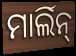
ମାର୍ଲିନ୍